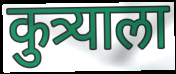
कुत्र्याला